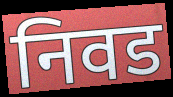
निवड